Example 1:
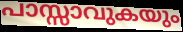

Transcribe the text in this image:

പാസ്സാവുകയും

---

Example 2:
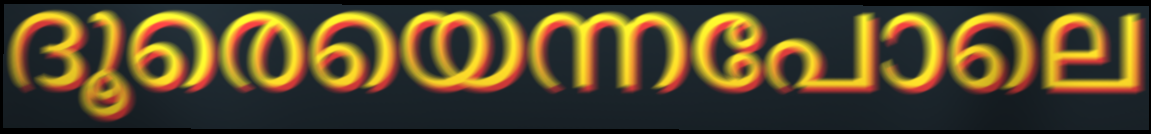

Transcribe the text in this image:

ദൂരെയെന്നപോലെ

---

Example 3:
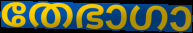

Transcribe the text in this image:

തേഭാഗാ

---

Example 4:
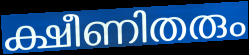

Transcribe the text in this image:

ക്ഷീണിതരും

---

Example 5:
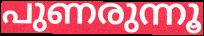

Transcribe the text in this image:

പുണരുന്നൂ